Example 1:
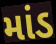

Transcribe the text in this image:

માંડ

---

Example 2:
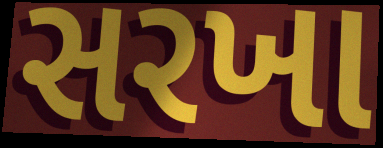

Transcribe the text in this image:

સરખા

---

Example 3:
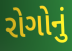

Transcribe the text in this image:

રોગોનું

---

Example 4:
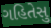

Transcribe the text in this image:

ગહિતેસુ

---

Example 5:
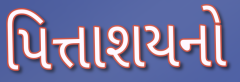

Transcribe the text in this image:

પિત્તાશયનો